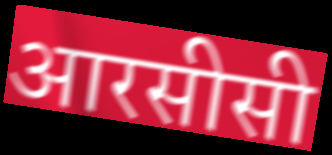
आरसीसी